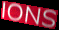
IONS